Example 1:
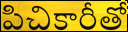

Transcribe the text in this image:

పిచికారీతో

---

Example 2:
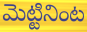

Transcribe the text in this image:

మెట్టినింట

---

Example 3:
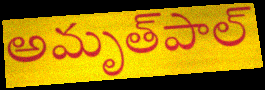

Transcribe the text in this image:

అమృత్‌పాల్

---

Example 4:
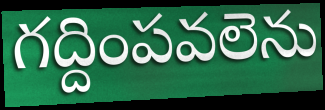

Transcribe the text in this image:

గద్దింపవలెను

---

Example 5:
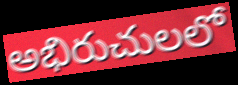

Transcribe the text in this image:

అభిరుచులలో